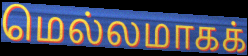
மெல்லமாகக்